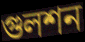
গুলশন